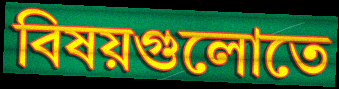
বিষয়গুলোতে